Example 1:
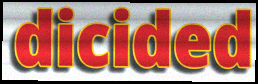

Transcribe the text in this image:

dicided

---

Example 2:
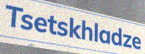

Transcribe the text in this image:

Tsetskhladze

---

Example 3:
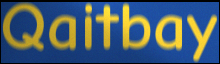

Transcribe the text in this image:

Qaitbay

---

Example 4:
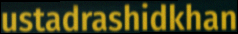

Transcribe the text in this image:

ustadrashidkhan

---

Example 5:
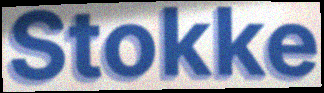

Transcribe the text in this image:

Stokke